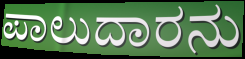
ಪಾಲುದಾರನು